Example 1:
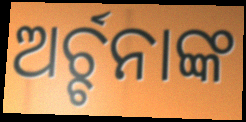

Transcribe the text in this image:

ଅର୍ଚ୍ଚନାଙ୍କ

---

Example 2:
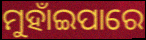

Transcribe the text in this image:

ମୁହାଁଇପାରେ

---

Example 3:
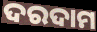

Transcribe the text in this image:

ଦରଦାମ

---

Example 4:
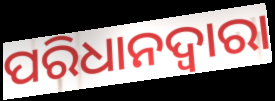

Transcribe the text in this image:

ପରିଧାନଦ୍ୱାରା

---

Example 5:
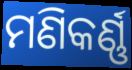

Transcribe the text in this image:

ମଣିକର୍ଣ୍ଣ